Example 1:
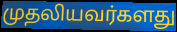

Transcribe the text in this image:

முதலியவர்களது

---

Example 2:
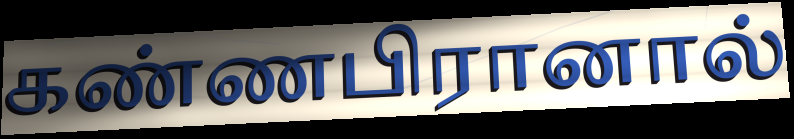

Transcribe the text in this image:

கண்ணபிரானால்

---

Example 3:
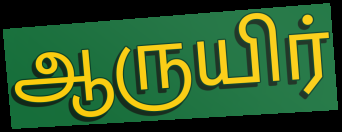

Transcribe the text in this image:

ஆருயிர்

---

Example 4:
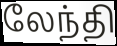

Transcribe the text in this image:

லேந்தி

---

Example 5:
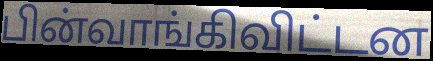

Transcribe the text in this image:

பின்வாங்கிவிட்டன